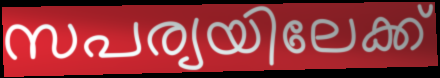
സപര്യയിലേക്ക്